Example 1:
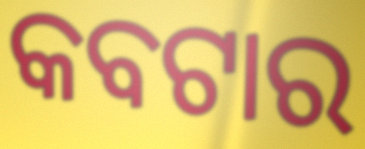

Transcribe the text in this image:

କବଟାର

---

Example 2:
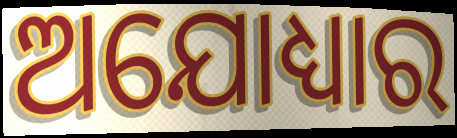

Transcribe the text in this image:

ଅଯୋଧ୍ୟାର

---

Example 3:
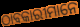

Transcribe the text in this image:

ଠାବକାରୀମାନେ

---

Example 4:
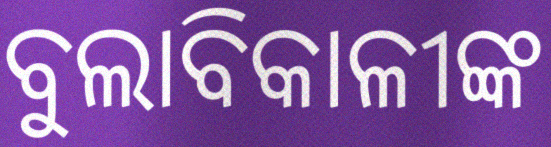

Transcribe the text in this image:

ବୁଲାବିକାଳୀଙ୍କ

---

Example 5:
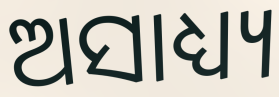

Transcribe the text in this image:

ଅସାଧ୍ୟ୍ୟ